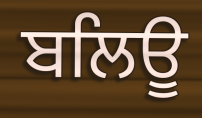
ਬਲਿਊ